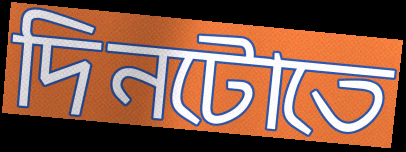
দিনটোতে